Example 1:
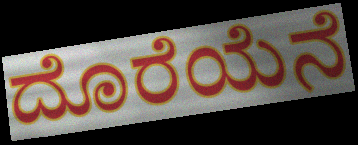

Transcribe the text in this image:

ದೊರೆಯೆನೆ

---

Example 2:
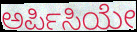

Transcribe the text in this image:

ಅರ್ಪಿಸಿಯೇ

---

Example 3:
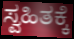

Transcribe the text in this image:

ಸ್ವಹಿತಕ್ಕೆ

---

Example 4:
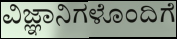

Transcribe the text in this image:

ವಿಜ್ಞಾನಿಗಳೊಂದಿಗೆ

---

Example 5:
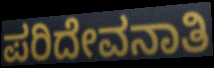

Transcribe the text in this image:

ಪರಿದೇವನಾತಿ